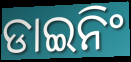
ଡାଇନିଂ